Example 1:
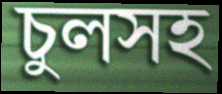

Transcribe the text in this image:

চুলসহ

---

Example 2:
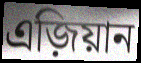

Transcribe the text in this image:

এজ়িয়ান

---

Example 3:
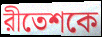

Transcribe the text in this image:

রীতেশকে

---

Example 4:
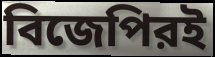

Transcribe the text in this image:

বিজেপিরই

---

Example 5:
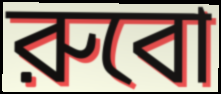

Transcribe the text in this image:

রুবো